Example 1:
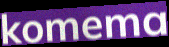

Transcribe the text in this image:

komema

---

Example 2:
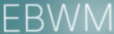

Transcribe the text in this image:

EBWM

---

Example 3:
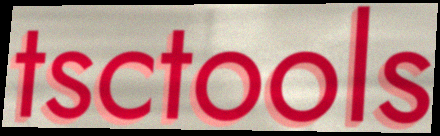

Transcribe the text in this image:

tsctools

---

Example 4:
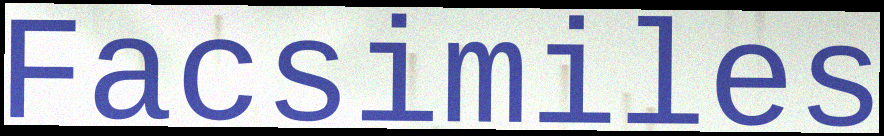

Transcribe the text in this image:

Facsimiles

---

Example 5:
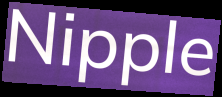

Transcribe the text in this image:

Nipple